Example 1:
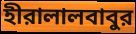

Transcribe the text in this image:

হীরালালবাবুর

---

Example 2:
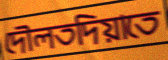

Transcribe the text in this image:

দৌলতদিয়াতে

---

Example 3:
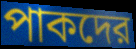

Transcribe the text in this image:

পাকদের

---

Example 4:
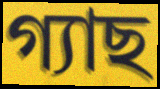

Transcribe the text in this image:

গ্যাছ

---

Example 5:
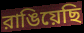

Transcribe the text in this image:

রাঙিয়েছি